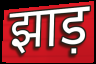
झाड़